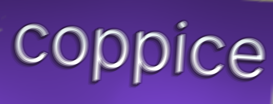
coppice